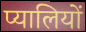
प्यालियों